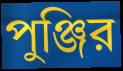
পুঞ্জির